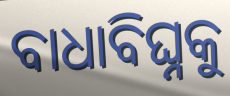
ବାଧାବିଘ୍ନକୁ